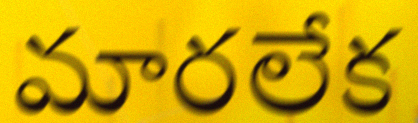
మారలేక